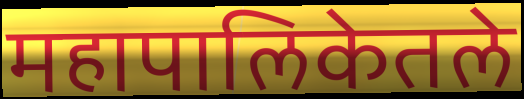
महापालिकेतले